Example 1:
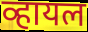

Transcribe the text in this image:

व्हायल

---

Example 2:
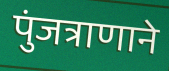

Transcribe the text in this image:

पुंजत्राणाने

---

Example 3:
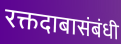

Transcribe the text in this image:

रक्तदाबासंबंधी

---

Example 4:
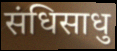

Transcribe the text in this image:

संधिसाधु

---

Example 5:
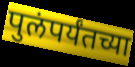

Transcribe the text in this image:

पुलंपर्यंतच्या